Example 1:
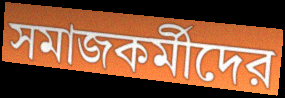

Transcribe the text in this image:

সমাজকর্মীদের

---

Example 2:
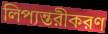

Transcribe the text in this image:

লিপ্যন্তরীকরণ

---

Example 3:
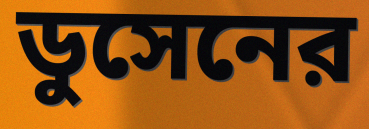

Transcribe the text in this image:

ডুসেনের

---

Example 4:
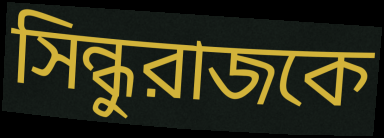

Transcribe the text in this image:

সিন্ধুরাজকে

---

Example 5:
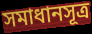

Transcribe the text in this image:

সমাধানসূত্র